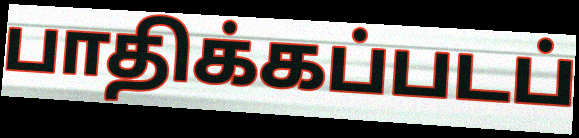
பாதிக்கப்படப்